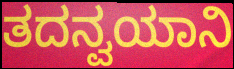
ತದನ್ವಯಾನಿ